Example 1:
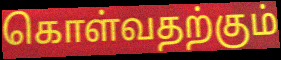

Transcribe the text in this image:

கொள்வதற்கும்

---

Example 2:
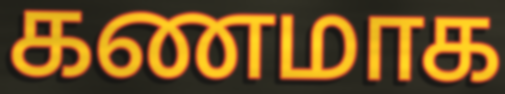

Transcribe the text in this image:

கணமாக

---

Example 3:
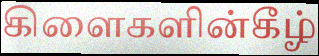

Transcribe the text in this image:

கிளைகளின்கீழ்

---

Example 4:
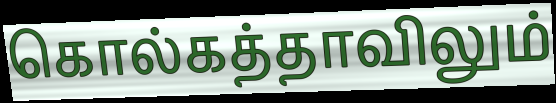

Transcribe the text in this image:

கொல்கத்தாவிலும்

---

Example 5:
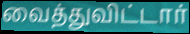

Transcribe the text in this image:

வைத்துவிட்டார்